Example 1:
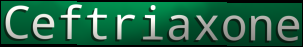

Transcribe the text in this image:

Ceftriaxone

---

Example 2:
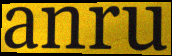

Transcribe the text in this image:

anru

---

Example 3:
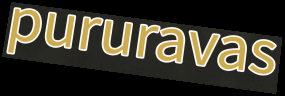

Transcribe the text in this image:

pururavas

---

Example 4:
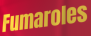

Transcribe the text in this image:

Fumaroles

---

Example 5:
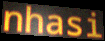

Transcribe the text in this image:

nhasi